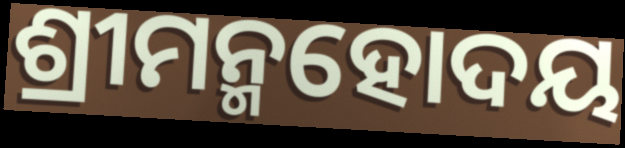
ଶ୍ରୀମନ୍ମହୋଦୟ